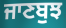
ਜਾਣਬੁਝ